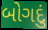
બોગદું